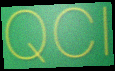
QCI